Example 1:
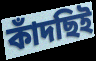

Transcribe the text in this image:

কাঁদছিই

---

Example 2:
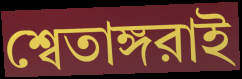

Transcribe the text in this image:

শ্বেতাঙ্গরাই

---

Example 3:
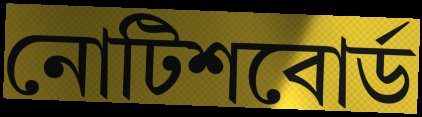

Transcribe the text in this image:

নোটিশবোর্ড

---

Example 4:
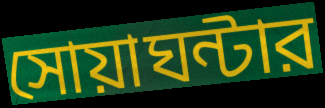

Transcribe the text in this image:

সোয়াঘন্টার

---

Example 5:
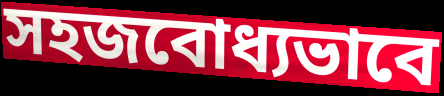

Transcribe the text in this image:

সহজবোধ্যভাবে